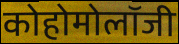
कोहोमोलॉजी